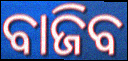
ବାଜିବ